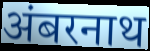
अंबरनाथ